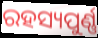
ରହସ୍ୟପୁର୍ଣ୍ଣ